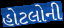
હોટલોની